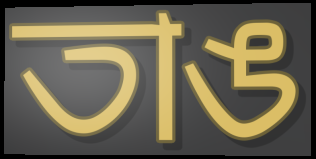
তাঙ